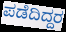
ಪಡೆದಿದ್ದರ